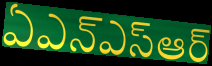
ఏఎన్ఎస్ఆర్